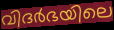
വിദർഭയിലെ